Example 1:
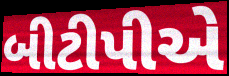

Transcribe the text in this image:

બીટીપીએ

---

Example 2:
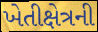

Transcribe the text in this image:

ખેતીક્ષેત્રની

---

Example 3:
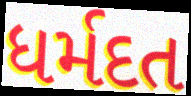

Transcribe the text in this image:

ધર્મદત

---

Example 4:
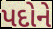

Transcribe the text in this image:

પદોને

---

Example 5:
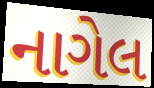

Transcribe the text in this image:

નાગેલ